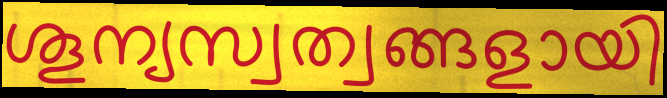
ശൂന്യസ്വത്വങ്ങളായി